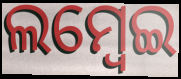
ଲମ୍ଵେଇ